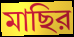
মাছির